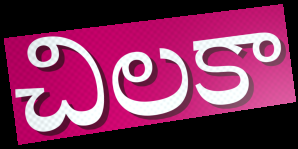
చిలకా